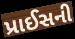
પ્રાઈસની